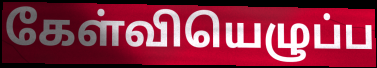
கேள்வியெழுப்ப